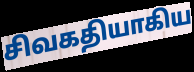
சிவகதியாகிய